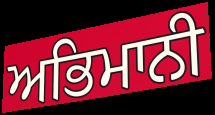
ਅਭਿਮਾਨੀ